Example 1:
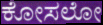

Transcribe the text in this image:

ಕೋಸಲೋ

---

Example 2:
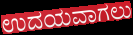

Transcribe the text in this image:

ಉದಯವಾಗಲು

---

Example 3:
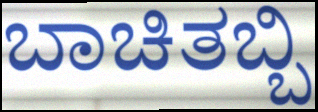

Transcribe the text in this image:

ಬಾಚಿತಬ್ಬಿ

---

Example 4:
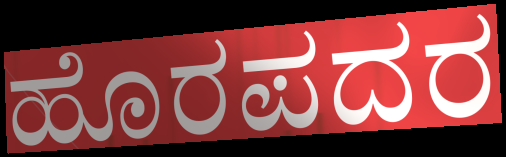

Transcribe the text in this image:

ಹೊರಪದರ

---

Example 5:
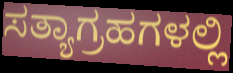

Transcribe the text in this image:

ಸತ್ಯಾಗ್ರಹಗಳಲ್ಲಿ